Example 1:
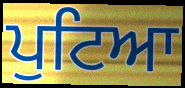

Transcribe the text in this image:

ਪੁਟਿਆ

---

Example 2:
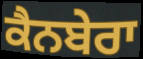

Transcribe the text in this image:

ਕੈਨਬੇਰਾ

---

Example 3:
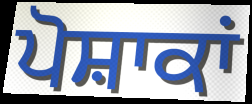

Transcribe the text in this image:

ਪੋਸ਼ਾਕਾਂ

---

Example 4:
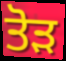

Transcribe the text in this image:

ਤੋੜ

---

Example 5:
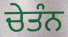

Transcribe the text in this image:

ਚੇਤੰਨ